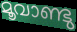
മൂവാണ്ടു